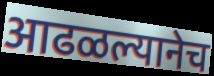
आढळल्यानेच